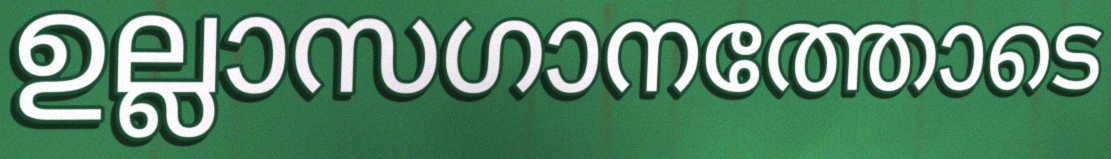
ഉല്ലാസഗാനത്തോടെ